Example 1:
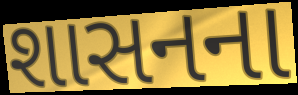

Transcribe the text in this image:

શાસનના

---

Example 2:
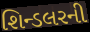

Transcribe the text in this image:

શિન્ડલરની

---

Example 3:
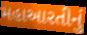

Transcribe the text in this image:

મહાઆરતીનું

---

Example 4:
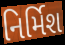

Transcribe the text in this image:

નિર્મિશ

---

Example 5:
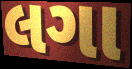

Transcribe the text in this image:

લગા